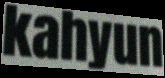
kahyun